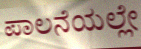
ಪಾಲನೆಯಲ್ಲೇ